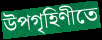
উপগৃহিণীতে